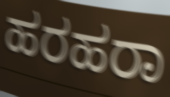
ಹರಹರಾ